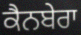
ਕੈਨਬੇਰਾ